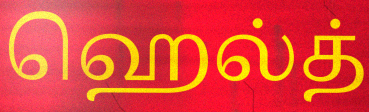
ஹெல்த்